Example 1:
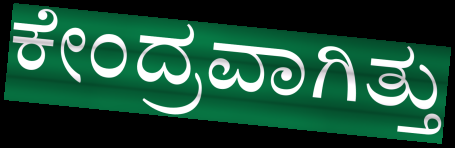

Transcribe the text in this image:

ಕೇಂದ್ರವಾಗಿತ್ತು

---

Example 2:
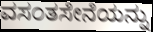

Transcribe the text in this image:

ವಸಂತಸೇನೆಯನ್ನು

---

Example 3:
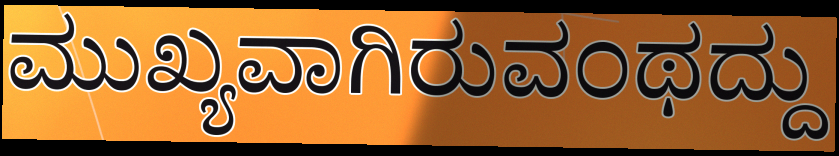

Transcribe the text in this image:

ಮುಖ್ಯವಾಗಿರುವಂಥದ್ದು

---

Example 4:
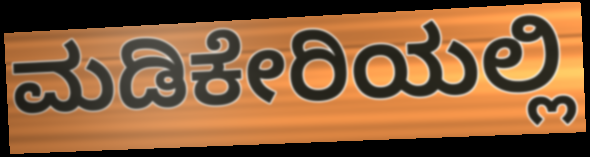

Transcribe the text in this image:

ಮಡಿಕೇರಿಯಲ್ಲಿ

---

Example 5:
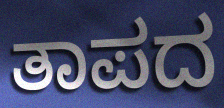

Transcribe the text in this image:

ತಾಪದ